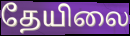
தேயிலை